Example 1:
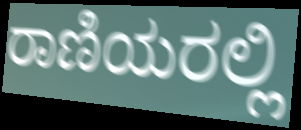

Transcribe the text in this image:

ರಾಣಿಯರಲ್ಲಿ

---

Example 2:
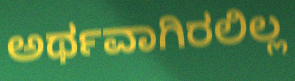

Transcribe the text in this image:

ಅರ್ಥವಾಗಿರಲಿಲ್ಲ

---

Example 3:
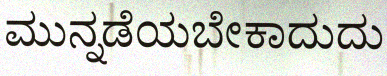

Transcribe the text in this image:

ಮುನ್ನಡೆಯಬೇಕಾದುದು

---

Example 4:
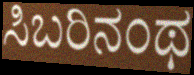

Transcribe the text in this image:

ಸಿಬರಿನಂಥ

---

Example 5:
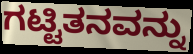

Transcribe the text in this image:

ಗಟ್ಟಿತನವನ್ನು